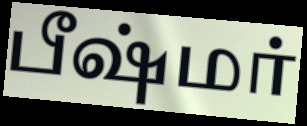
பீஷ்மர்